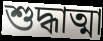
শুদ্ধাত্মা